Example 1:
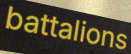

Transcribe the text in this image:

battalions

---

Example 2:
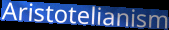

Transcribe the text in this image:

Aristotelianism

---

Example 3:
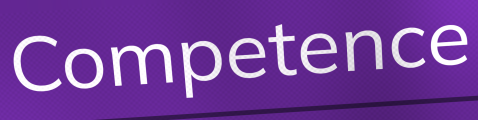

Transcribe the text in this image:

Competence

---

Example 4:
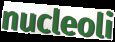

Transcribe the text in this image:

nucleoli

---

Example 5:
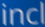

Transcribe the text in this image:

incl